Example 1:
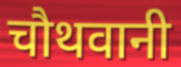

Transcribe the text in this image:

चौथवानी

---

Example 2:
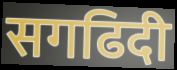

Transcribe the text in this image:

सगढिदी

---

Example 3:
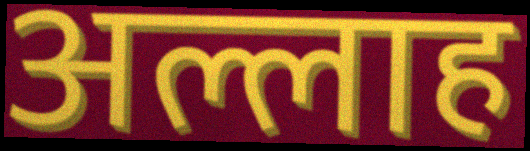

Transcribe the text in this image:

अल्लाह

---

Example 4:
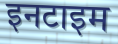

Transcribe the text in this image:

इनटाइम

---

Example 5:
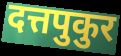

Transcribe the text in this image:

दत्तपुकुर